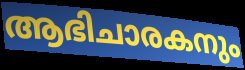
ആഭിചാരകനും